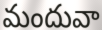
మందువా